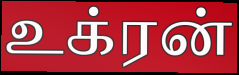
உக்ரன்